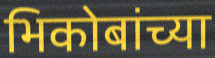
भिकोबांच्या